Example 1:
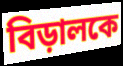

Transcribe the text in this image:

বিড়ালকে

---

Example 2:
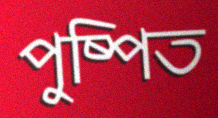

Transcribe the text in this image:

পুষ্পিত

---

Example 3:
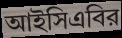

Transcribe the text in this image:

আইসিএবির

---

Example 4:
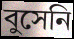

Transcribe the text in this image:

বুসেনি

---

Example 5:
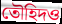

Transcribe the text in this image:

তৌহিদও